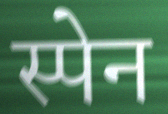
स्पेन